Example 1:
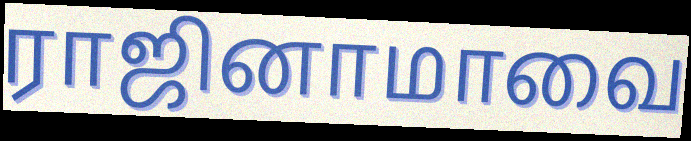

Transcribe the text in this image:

ராஜினாமாவை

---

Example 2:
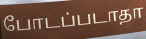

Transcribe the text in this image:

போடப்படாதா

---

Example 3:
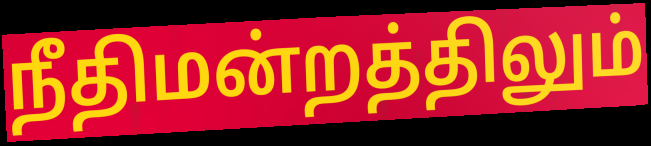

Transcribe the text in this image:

நீதிமன்றத்திலும்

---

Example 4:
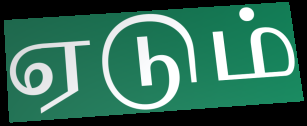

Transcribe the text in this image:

ஏடும்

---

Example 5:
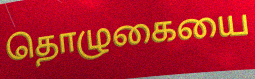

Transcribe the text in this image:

தொழுகையை